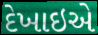
દેખાઇએ